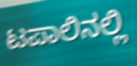
ಟಪಾಲಿನಲ್ಲಿ